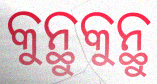
କୁନ୍ଥୁକୁନ୍ଥୁ